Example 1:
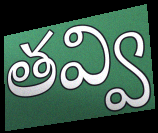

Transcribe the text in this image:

తవ్వి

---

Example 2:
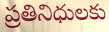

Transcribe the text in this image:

ప్రతినిధులకు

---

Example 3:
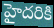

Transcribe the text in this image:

హైదరికి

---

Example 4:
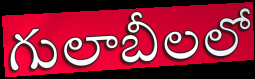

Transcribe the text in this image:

గులాబీలలో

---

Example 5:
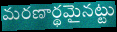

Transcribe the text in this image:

మరణార్థమైనట్టు